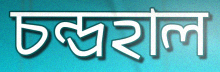
চন্দ্ৰহাল